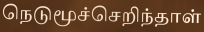
நெடுமூச்செறிந்தாள்